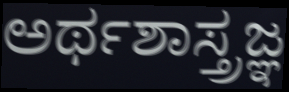
ಅರ್ಥಶಾಸ್ತ್ರಜ್ಞ